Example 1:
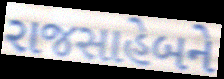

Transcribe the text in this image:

રાજસાહેબને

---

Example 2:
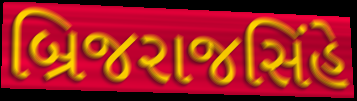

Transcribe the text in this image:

બ્રિજરાજસિંહે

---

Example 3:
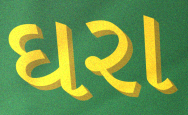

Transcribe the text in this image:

ઘરા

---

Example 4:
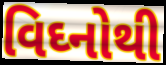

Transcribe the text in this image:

વિઘ્નોથી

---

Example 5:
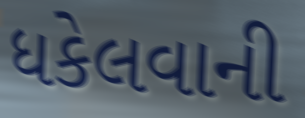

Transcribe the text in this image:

ધકેલવાની